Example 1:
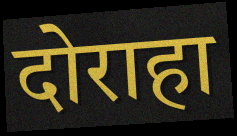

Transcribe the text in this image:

दोराहा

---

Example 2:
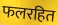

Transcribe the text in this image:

फलरहित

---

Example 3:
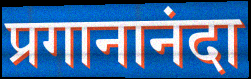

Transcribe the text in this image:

प्रगानानंदा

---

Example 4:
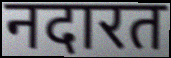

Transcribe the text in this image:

नदारत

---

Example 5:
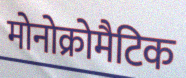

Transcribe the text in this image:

मोनोक्रोमैटिक